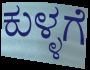
ಕುಳ್ಳಗೆ